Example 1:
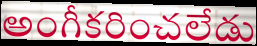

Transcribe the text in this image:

అంగీకరించలేడు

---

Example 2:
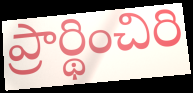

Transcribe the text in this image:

ప్రార్థించిరి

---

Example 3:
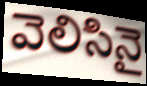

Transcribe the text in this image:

వెలిసినై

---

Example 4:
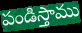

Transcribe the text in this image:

పండిస్తాము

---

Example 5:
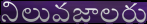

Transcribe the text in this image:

నిలువజాలరు